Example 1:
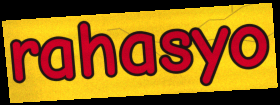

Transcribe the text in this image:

rahasyo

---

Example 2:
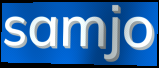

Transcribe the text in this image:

samjo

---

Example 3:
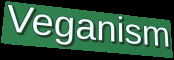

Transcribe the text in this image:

Veganism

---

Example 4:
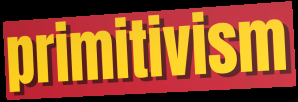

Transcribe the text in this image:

primitivism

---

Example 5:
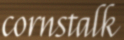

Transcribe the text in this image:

cornstalk